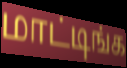
மாட்டிங்க